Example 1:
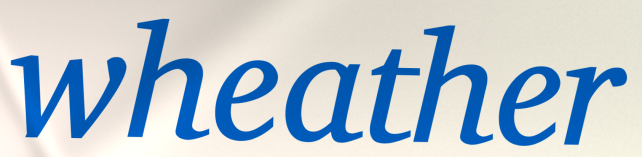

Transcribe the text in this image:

wheather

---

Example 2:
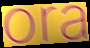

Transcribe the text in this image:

ora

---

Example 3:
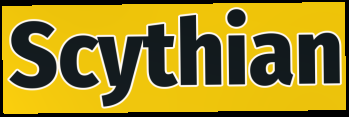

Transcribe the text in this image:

Scythian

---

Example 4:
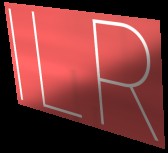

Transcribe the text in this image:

ILR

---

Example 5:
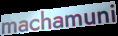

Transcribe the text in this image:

machamuni